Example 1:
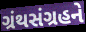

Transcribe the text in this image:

ગ્રંથસંગ્રહને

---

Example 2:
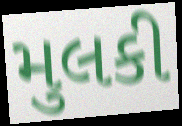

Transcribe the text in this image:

મુલકી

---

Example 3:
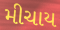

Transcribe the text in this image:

મીચાય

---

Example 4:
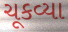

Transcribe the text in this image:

ચૂકવ્યા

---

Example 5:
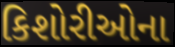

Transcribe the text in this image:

કિશોરીઓના